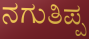
ನಗುತಿಪ್ಪ